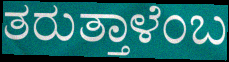
ತರುತ್ತಾಳೆಂಬ